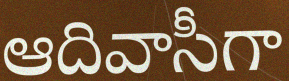
ఆదివాసీగా